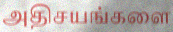
அதிசயங்களை